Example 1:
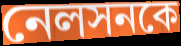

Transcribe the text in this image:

নেলসনকে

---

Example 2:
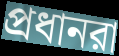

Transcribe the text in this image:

প্রধানরা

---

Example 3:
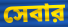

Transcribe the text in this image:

সেবার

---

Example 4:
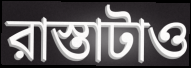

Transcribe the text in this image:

রাস্তাটাও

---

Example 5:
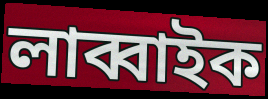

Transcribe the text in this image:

লাব্বাইক